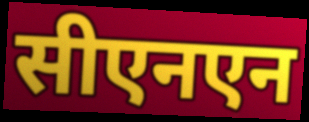
सीएनएन